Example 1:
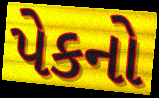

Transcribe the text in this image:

પેકનો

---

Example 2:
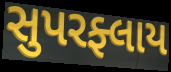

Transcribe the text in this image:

સુપરફ્લાય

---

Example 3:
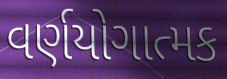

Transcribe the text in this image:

વર્ણયોગાત્મક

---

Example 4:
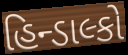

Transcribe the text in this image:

હિન્ડાલ્કો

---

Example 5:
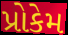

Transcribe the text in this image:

પ્રોકેમ